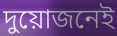
দুয়োজনেই